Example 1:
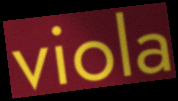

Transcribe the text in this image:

viola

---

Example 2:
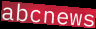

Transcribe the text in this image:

abcnews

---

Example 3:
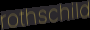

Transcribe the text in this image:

rothschild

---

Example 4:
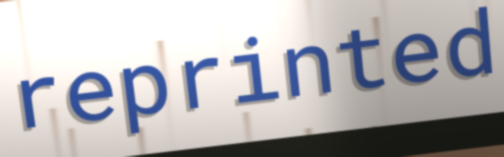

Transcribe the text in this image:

reprinted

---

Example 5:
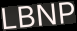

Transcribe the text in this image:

LBNP